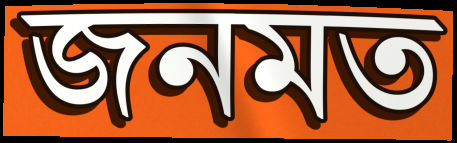
জনমত